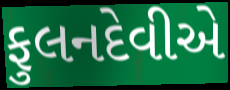
ફુલનદેવીએ